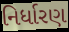
નિર્ધારણ